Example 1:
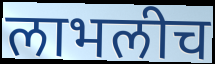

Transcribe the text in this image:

लाभलीच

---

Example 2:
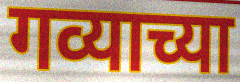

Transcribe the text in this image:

गव्याच्या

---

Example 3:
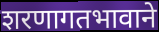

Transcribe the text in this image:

शरणागतभावाने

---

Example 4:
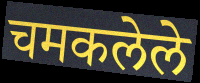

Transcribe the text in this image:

चमकलेले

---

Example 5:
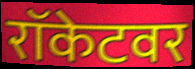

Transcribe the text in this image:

रॉकेटवर